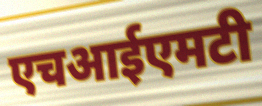
एचआईएमटी